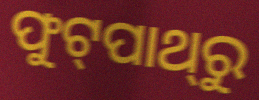
ଫୁଟ୍‌ପାଥ୍‌ରୁ